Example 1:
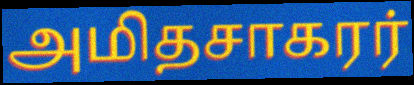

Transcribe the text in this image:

அமிதசாகரர்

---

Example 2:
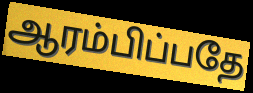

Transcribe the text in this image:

ஆரம்பிப்பதே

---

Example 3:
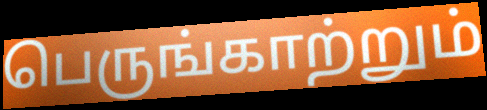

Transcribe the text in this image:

பெருங்காற்றும்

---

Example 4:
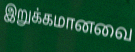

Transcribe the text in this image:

இறுக்கமானவை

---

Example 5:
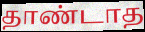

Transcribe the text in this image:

தாண்டாத